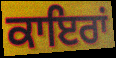
ਕਾਇਰਾਂ